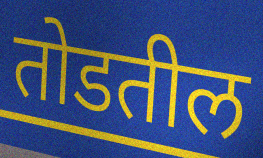
तोडतील